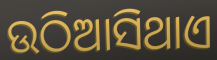
ଉଠିଆସିଥାଏ